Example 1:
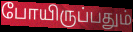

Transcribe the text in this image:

போயிருப்பதும்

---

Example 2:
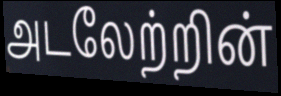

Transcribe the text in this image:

அடலேற்றின்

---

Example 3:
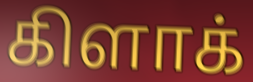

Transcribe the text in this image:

கிளாக்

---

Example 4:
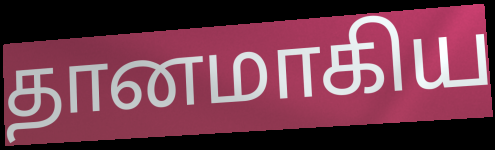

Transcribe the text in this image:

தானமாகிய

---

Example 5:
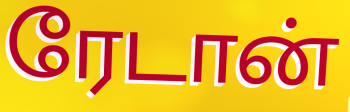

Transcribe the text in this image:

ரேடான்